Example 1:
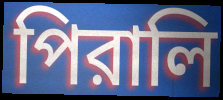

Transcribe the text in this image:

পিরালি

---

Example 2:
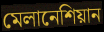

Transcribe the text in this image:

মেলানেশিয়ান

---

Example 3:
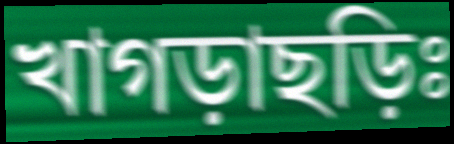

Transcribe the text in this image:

খাগড়াছড়িঃ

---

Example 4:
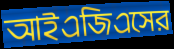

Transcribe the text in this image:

আইএজিএসের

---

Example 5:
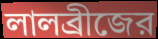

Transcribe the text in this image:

লালব্রীজের